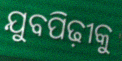
ଯୁବପିଢ଼ୀକୁ